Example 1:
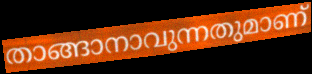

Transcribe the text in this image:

താങ്ങാനാവുന്നതുമാണ്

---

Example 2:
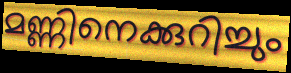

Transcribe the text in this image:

മണ്ണിനെക്കുറിച്ചും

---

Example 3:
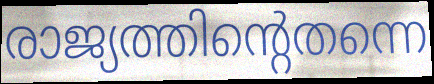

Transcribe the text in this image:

രാജ്യത്തിന്റെതന്നെ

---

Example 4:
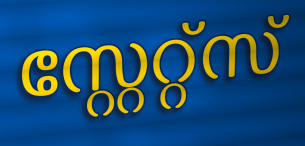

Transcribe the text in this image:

സ്റ്റേറ്റ്സ്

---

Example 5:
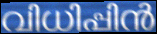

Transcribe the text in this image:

വിധിപ്പിൻ